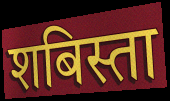
शबिस्ता